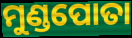
ମୁଣ୍ଡପୋତା